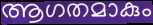
ആഗതമാകും